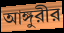
আঙ্গুরীর